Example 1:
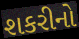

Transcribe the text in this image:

શકરીનો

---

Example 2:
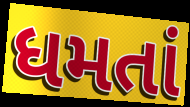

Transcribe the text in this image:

ધમતાં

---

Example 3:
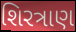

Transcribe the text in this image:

શિરત્રાણ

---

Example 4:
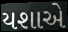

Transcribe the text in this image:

યશાએ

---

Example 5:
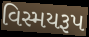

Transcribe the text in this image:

વિસ્મયરૂપ